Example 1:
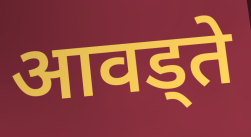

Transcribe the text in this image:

आवड्ते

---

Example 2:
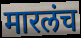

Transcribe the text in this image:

मारलंच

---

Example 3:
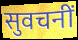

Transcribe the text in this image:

सुवचनीं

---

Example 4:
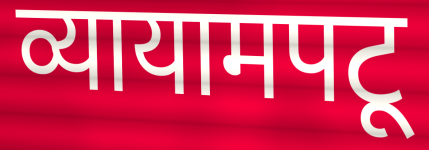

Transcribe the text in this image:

व्यायामपटू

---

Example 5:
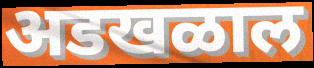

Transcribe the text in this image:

अडखळाल